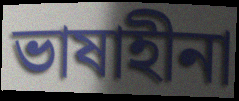
ভাষাহীনা